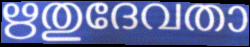
ഋതുദേവതാ